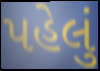
પહેલું